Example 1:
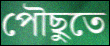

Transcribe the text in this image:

পৌছুতে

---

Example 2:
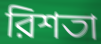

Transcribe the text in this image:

রিশতা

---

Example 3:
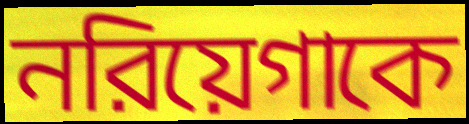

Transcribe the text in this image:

নরিয়েগাকে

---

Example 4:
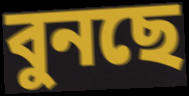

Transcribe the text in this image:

বুনছে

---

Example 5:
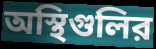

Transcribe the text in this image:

অস্থিগুলির